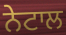
ਨੇਟਾਲ